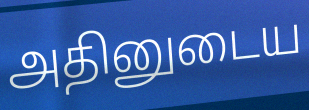
அதினுடைய